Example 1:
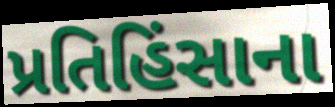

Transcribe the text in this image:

પ્રતિહિંસાના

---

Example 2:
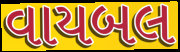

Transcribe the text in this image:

વાયબલ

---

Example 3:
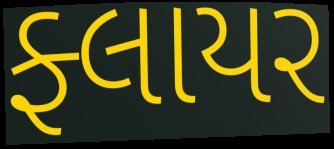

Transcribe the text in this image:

ફ્લાયર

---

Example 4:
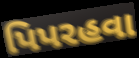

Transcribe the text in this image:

પિપરહવા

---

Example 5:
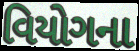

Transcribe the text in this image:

વિયોગના